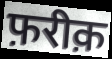
फ़रीक़